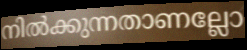
നിൽക്കുന്നതാണല്ലോ